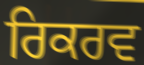
ਰਿਕਰਵ